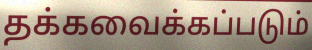
தக்கவைக்கப்படும்